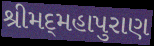
શ્રીમદ્‌મહાપુરાણ